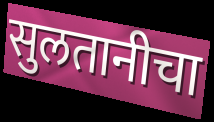
सुलतानीचा